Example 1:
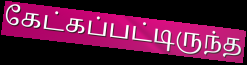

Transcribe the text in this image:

கேட்கப்பட்டிருந்த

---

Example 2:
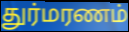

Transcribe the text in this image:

துர்மரணம்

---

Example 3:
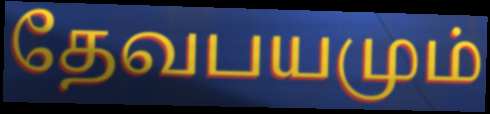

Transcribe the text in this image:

தேவபயமும்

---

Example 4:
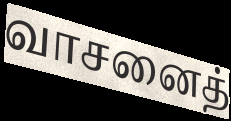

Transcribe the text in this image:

வாசனைத்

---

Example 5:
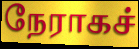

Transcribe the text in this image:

நேராகச்